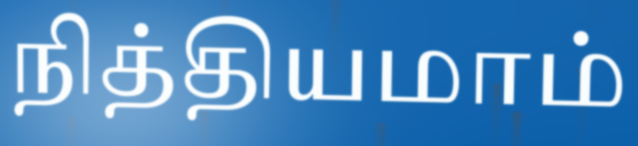
நித்தியமாம்